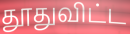
தூதுவிட்ட